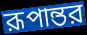
রূপান্তর